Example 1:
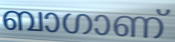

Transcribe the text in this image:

ബാഗാണ്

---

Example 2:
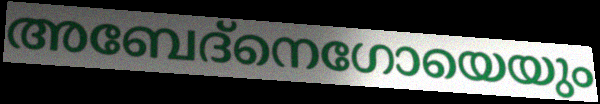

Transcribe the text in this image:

അബേദ്നെഗോയെയും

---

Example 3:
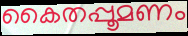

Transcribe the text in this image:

കൈതപ്പൂമണം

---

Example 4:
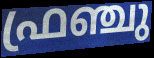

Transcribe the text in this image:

ഫ്രഞ്ചു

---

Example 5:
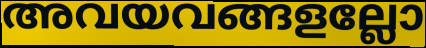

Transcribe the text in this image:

അവയവങ്ങളല്ലോ